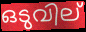
ഒടുവില്